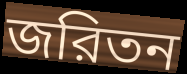
জরিতন